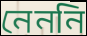
নেননি